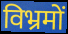
विभ्रमों